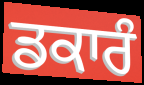
ਡਕਾਰੰ